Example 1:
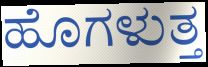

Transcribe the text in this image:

ಹೊಗಳುತ್ತ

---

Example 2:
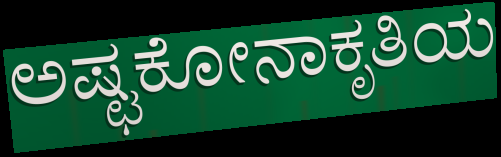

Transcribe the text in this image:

ಅಷ್ಟಕೋನಾಕೃತಿಯ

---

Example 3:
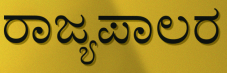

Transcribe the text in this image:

ರಾಜ್ಯಪಾಲರ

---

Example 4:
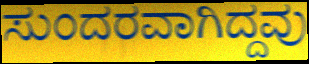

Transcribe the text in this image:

ಸುಂದರವಾಗಿದ್ದವು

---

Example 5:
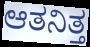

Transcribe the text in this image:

ಆತನಿತ್ತ